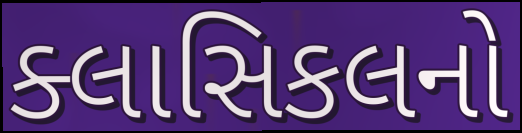
ક્લાસિકલનો